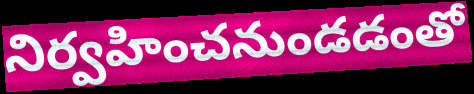
నిర్వహించనుండడంతో